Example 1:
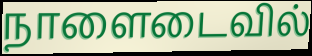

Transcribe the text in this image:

நாளைடைவில்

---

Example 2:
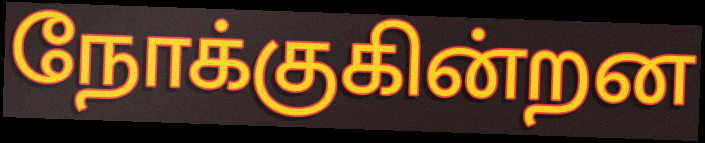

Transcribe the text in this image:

நோக்குகின்றன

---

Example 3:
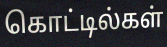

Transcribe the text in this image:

கொட்டில்கள்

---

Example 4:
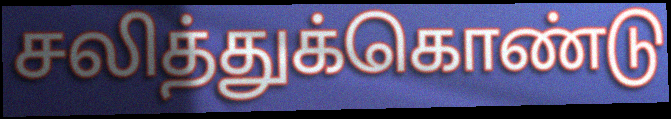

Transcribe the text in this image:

சலித்துக்கொண்டு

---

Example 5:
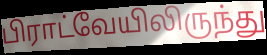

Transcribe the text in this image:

பிராட்வேயிலிருந்து